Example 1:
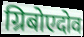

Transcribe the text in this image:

ग्रिबोएदोव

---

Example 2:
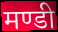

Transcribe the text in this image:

मण्डी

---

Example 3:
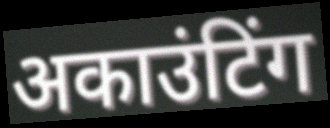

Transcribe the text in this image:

अकाउंटिंग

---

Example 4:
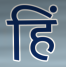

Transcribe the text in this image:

हिं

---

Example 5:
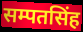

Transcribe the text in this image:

सम्पतसिंह